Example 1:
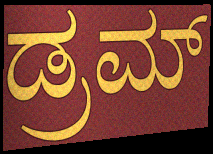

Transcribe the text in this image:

ಡ್ರಮ್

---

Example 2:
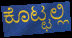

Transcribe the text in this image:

ಕೊಟ್ಟಲ್ಲಿ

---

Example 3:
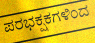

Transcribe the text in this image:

ಪರಭಕ್ಷಕಗಳಿಂದ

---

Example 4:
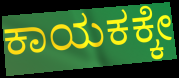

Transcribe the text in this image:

ಕಾಯಕಕ್ಕೇ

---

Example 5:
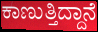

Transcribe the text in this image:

ಕಾಣುತ್ತಿದ್ದಾನೆ